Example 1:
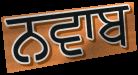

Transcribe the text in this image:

ਨਵਾਬ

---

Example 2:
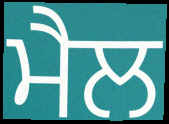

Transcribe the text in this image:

ਮੈਲ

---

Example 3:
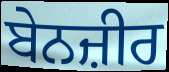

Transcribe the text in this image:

ਬੇਨਜ਼ੀਰ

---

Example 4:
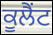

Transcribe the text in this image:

ਕੂਲੈਂਟ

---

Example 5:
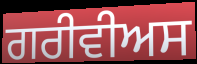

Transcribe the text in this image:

ਗਰੀਵੀਅਸ